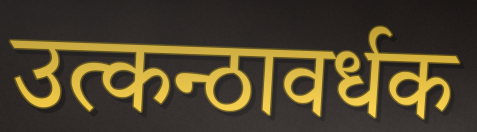
उत्कन्ठावर्धक